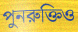
পুনরুক্তিও